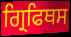
ਗ੍ਰਿਫਿਥਸ